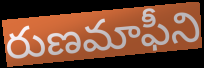
రుణమాఫీని